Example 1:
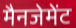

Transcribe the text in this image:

मैनजेमेंट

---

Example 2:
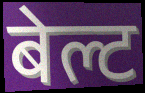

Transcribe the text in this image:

बेल्‍ट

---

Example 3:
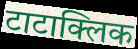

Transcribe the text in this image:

टाटाक्लिक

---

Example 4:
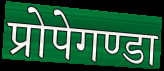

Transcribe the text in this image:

प्रोपेगण्डा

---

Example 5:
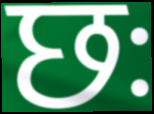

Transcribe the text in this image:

छः